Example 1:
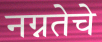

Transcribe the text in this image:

नग्नतेचे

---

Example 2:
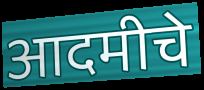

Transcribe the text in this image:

आदमीचे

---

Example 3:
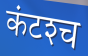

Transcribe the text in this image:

कंटश्च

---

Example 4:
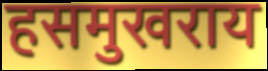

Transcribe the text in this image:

हसमुखराय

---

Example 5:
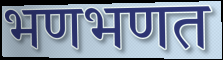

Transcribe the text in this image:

भणभणत